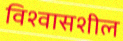
विश्वासशील